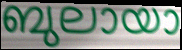
ബുലായാ